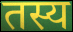
तस्य